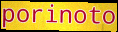
porinoto